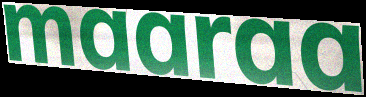
maaraa